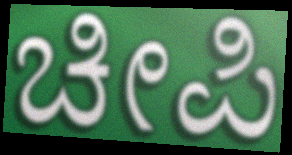
ಚೀಪಿ